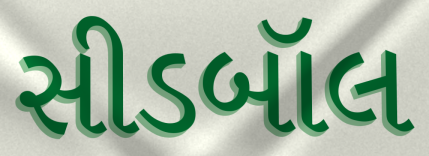
સીડબૉલ